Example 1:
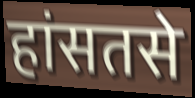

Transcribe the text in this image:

हांसतसे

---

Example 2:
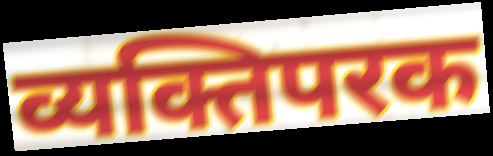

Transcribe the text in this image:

व्यक्तिपरक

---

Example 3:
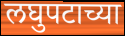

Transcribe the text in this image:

लघुपटाच्या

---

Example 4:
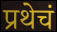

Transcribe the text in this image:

प्रथेचं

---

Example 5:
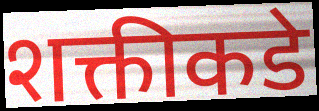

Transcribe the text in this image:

शक्तीकडे